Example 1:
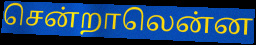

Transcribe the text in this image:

சென்றாலென்ன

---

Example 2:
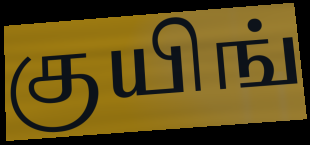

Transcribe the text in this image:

குயிங்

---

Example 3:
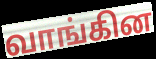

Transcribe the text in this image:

வாங்கின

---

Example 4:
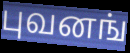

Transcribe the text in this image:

புவனங்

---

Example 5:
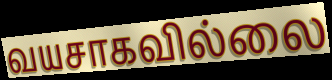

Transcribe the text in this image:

வயசாகவில்லை